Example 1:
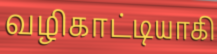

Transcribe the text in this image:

வழிகாட்டியாகி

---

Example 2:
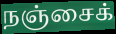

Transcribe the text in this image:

நஞ்சைக்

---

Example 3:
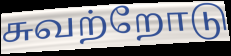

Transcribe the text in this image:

சுவற்றோடு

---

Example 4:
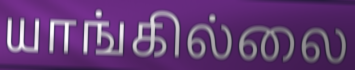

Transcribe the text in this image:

யாங்கில்லை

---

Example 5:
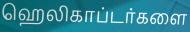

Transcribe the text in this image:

ஹெலிகாப்டர்களை